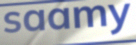
saamy